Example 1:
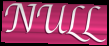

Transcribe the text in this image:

NULL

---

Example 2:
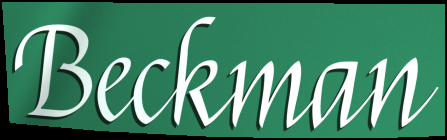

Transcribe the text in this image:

Beckman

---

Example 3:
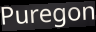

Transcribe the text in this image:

Puregon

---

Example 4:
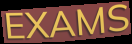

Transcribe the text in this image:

EXAMS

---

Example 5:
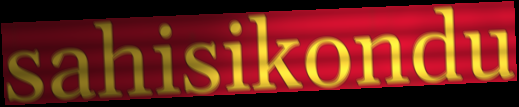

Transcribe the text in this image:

sahisikondu